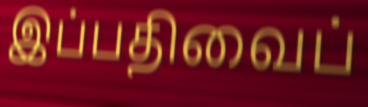
இப்பதிவைப்